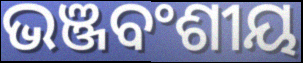
ଭଞ୍ଜବଂଶୀୟ